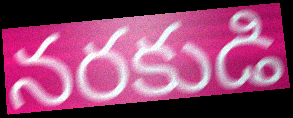
నరకుడి